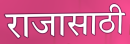
राजासाठी